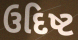
ઉદિષ્ટ